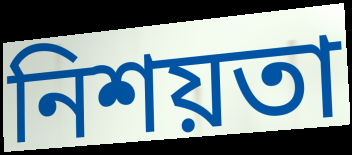
নিশয়তা